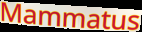
Mammatus